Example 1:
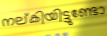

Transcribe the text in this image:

നല്കിയിട്ടുണ്ടോ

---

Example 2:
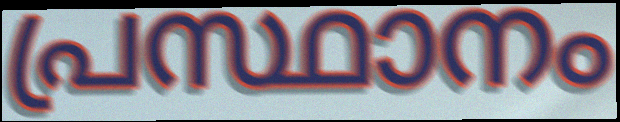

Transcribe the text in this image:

പ്രസ്ഥാനം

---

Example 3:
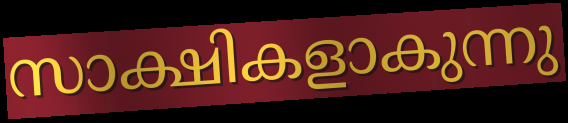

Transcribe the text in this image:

സാക്ഷികളാകുന്നു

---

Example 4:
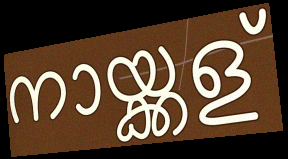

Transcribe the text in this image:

നായ്ക്കള്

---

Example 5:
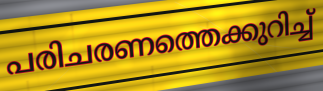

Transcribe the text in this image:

പരിചരണത്തെക്കുറിച്ച്